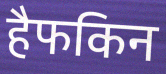
हैफकिन